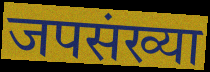
जपसंख्या